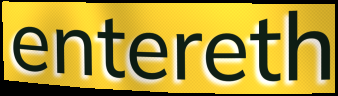
entereth